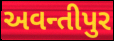
અવન્તીપુર